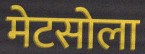
मेटसोला